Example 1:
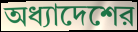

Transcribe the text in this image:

অধ্যাদেশের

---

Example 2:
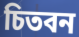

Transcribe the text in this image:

চিতবন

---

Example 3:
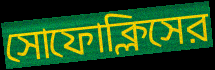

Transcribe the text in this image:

সোফোক্লিসের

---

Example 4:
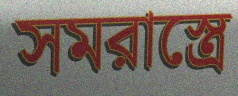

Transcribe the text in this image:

সমরাস্ত্রে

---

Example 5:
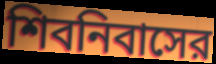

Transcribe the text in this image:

শিবনিবাসের